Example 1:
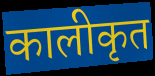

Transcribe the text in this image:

कालीकृत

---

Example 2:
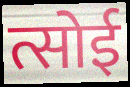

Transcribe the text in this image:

त्सोई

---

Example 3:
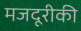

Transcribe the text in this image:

मजदूरीकी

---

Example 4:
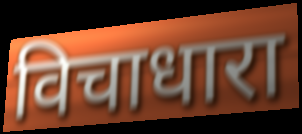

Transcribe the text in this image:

विचाधारा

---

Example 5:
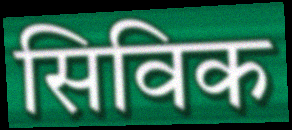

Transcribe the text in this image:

सिविक